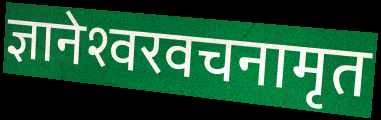
ज्ञानेश्वरवचनामृत